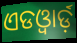
ଏଡଓ୍ବାର୍ଡ଼